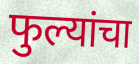
फुल्यांचा